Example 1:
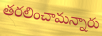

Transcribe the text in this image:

తరలించామన్నారు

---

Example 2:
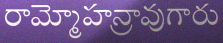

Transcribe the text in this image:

రామ్మోహన్రావుగారు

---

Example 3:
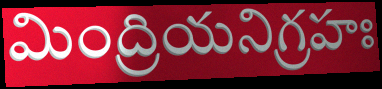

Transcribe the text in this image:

మింద్రియనిగ్రహః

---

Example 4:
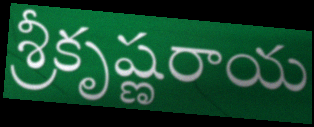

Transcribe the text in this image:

శ్రీకృష్ణరాయ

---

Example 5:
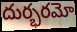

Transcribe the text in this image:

దుర్భరమో